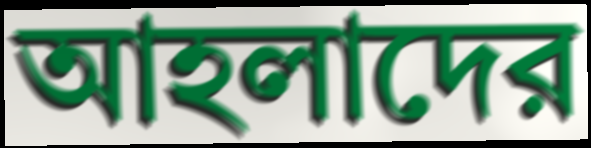
আহলাদের